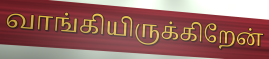
வாங்கியிருக்கிறேன்